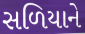
સળિયાને